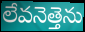
లేవనెత్తెను